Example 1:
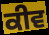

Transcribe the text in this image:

ਕੀਵ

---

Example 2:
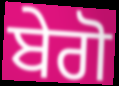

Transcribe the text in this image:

ਬੇਗੋ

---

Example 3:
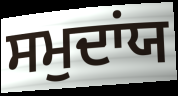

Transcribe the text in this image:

ਸਮੁਦਾਂਯ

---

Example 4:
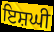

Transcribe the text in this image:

ਇਸ਼ਘੀ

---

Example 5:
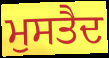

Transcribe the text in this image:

ਮੁਸਤੈਦ